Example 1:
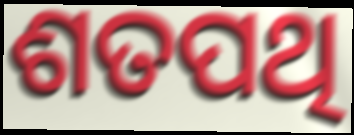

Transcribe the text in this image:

ଶତପଥି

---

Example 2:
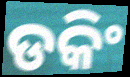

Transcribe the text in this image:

ଡକିଂ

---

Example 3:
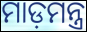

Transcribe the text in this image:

ମାଡ଼ମନ୍ତ୍ର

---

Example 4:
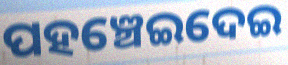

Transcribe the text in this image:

ପହଞ୍ଚେଇଦେଇ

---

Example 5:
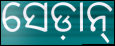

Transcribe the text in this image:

ସେଡ଼ାନ୍